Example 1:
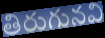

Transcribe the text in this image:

తిరుగునవి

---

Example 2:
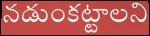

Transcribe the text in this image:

నడుంకట్టాలని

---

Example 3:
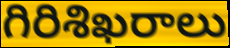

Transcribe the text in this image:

గిరిశిఖరాలు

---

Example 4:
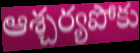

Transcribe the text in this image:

ఆశ్చర్యపోకు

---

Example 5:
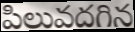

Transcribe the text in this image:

పిలువదగిన